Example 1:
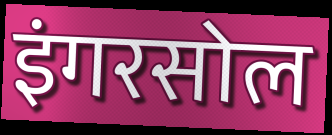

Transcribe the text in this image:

इंगरसोल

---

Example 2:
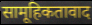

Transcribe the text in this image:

सामूहिकतावाद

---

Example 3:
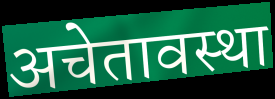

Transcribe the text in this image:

अचेतावस्था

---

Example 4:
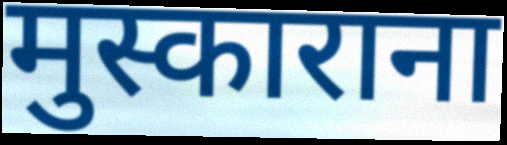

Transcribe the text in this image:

मुस्काराना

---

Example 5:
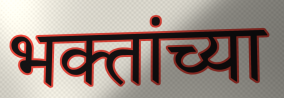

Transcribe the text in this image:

भक्तांच्या